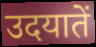
उदयातें